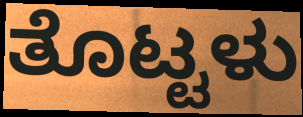
ತೊಟ್ಟಳು